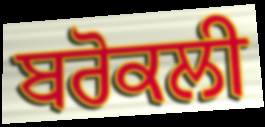
ਬਰੋਕਲੀ